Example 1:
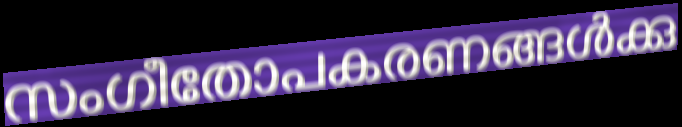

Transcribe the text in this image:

സംഗീതോപകരണങ്ങൾക്കു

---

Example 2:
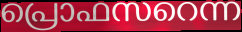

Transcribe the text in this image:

പ്രൊഫസറെന്ന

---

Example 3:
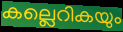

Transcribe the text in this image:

കല്ലെറികയും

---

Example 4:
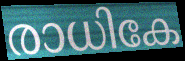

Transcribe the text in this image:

രാധികേ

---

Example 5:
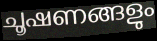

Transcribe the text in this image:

ചൂഷണങ്ങളും